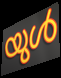
യുൾ